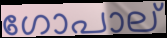
ഗോപാല്